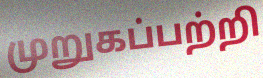
முறுகப்பற்றி